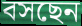
বসছেন